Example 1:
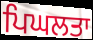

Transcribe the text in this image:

ਪਿਘਲਤਾ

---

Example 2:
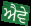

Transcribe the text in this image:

ਐਵੇ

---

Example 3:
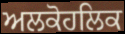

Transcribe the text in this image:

ਅਲਕੋਹਲਿਕ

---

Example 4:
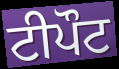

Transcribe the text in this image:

ਟੀਪੌਟ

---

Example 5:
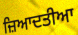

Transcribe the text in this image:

ਜ਼ਿਆਦਤੀਆ